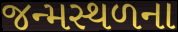
જન્મસ્થળના